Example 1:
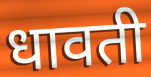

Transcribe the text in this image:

धावती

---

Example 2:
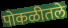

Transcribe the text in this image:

पोकळीतले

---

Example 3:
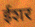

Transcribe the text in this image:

ईशर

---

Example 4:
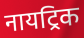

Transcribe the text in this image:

नायट्रिक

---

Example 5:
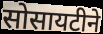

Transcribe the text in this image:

सोसायटीने